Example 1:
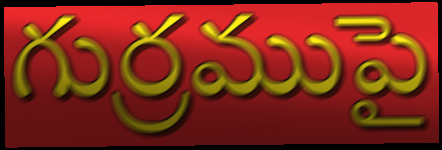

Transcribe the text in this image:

గుర్రముపై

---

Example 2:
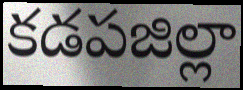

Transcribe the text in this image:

కడపజిల్లా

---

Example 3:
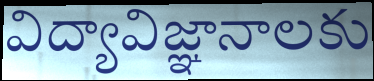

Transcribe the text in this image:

విద్యావిజ్ఞానాలకు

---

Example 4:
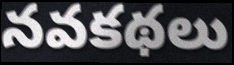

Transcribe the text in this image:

నవకథలు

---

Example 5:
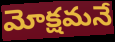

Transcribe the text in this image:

మోక్షమనే